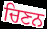
ਚਿਣਨ